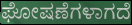
ಘೋಷಣೆಗಳಾಗದೆ